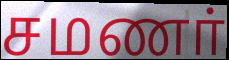
சமணர்